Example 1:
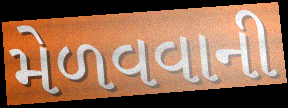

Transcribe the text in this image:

મેળવવાની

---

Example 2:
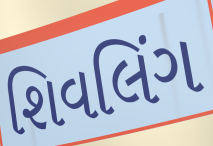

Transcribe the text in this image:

શિવલિંગ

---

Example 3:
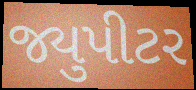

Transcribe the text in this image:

જ્યુપીટર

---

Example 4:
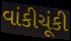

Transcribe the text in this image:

વાંકીચૂંકી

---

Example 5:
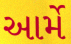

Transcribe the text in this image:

આર્મે